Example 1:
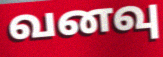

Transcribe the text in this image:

வனவு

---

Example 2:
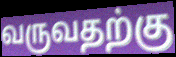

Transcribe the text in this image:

வருவதற்கு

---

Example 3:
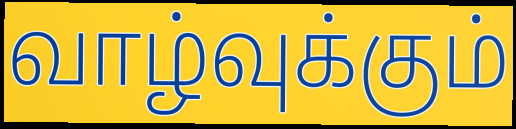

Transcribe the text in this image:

வாழ்வுக்கும்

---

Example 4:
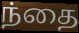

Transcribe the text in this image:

ந்தை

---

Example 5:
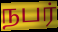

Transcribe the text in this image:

நபர்